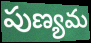
పుణ్యమ